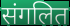
संगलित